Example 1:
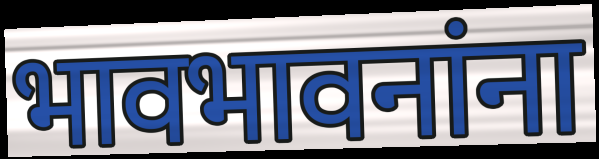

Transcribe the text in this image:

भावभावनांना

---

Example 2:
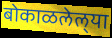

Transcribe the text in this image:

बोकाळलेल्या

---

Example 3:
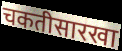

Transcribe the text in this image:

चकतीसारखा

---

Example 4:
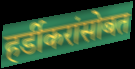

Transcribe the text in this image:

हर्डीकरांसोबत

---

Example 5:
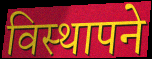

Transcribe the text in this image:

विस्थापने